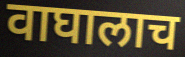
वाघालाच